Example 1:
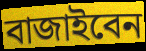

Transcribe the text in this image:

বাজাইবেন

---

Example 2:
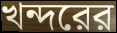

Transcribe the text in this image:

খন্দরের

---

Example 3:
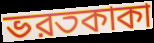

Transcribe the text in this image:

ভরতকাকা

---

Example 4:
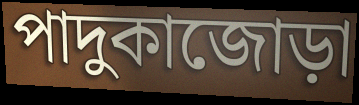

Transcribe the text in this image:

পাদুকাজোড়া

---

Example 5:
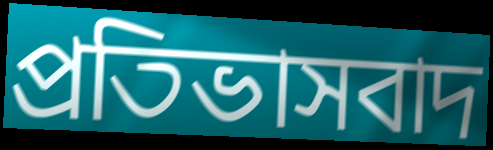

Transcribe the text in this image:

প্রতিভাসবাদ